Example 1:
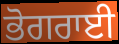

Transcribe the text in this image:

ਭੋਗਰਾਈ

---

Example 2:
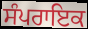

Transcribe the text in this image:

ਸੰਪਰਾਇਕ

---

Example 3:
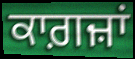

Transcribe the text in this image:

ਕਾਗ਼ਜ਼ਾਂ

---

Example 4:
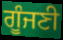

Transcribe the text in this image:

ਗੂੰਜਣੀ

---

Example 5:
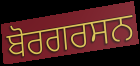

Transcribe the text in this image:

ਬੋਰਗਰਸਨ